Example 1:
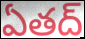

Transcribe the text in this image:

ఏతద్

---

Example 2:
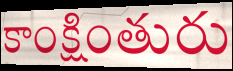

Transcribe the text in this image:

కాంక్షింతురు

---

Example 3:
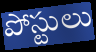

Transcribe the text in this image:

పోస్టులు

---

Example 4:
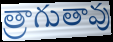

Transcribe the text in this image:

త్రాగుతావు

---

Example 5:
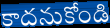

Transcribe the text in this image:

కాదనుకోండి